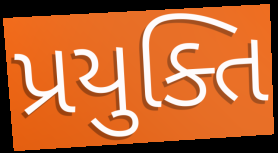
પ્રયુક્તિ